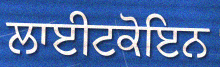
ਲਾਈਟਕੋਇਨ